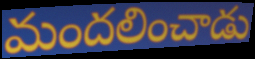
మందలించాడు